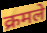
क्रमले